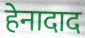
हेनादाद